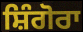
ਸ਼ਿੰਗੋਰਾ